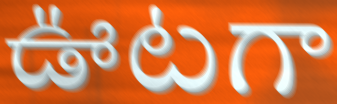
ఊటగా